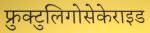
फ्रुक्टुलिगोसेकेराइड